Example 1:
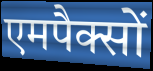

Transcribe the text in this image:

एमपैक्सों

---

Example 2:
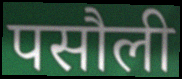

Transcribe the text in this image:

पसौली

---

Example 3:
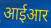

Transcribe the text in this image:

आईआर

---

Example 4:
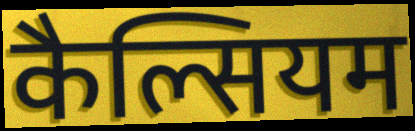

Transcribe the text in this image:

कैल्सियम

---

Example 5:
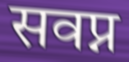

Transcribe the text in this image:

सवप्न